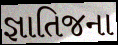
જ્ઞાતિજના